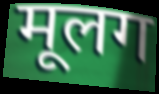
मूलग